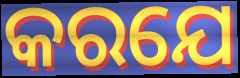
କରଯେ